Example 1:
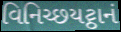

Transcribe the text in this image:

વિનિચ્છયટ્ઠાનં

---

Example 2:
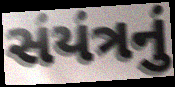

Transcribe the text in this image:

સંયંત્રનું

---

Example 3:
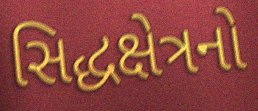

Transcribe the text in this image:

સિદ્ધક્ષેત્રનો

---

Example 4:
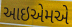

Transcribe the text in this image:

આઇએમએ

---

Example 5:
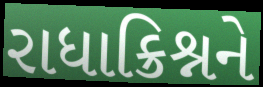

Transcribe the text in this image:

રાધાક્રિશ્નને